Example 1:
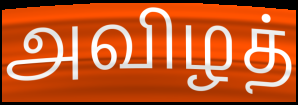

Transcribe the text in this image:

அவிழத்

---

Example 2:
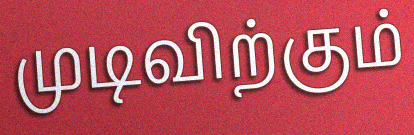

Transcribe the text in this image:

முடிவிற்கும்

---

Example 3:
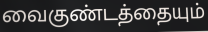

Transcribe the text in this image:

வைகுண்டத்தையும்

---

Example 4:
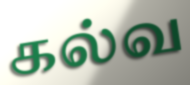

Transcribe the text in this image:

கல்வ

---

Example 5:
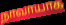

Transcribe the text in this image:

நாவாயாக